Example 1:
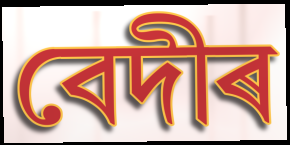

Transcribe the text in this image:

বেদীৰ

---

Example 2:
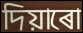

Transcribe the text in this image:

দিয়াৰো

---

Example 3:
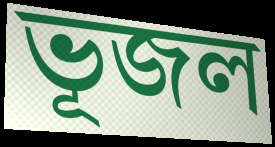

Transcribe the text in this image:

ভূজল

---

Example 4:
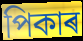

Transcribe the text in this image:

পিকাৰ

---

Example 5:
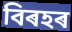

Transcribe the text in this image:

বিৰহৰ